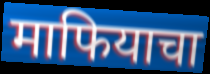
माफियाचा